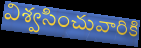
విశ్వసించువారికి